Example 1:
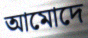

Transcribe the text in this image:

আমোদে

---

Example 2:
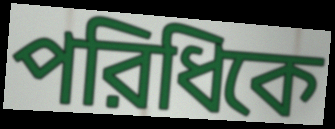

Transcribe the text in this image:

পরিধিকে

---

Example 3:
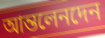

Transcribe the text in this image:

আন্তলেনদেন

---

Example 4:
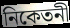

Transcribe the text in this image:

নিকেতনী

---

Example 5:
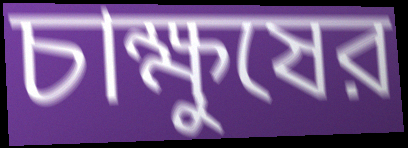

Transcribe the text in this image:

চাক্ষুষের